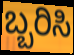
ಬ್ಬರಿಸಿ